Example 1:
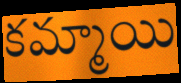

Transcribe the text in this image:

కమ్మాయి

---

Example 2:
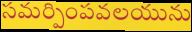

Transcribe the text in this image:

సమర్పింపవలయును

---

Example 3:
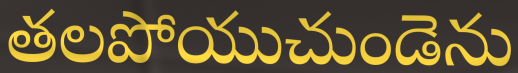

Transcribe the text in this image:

తలపోయుచుండెను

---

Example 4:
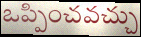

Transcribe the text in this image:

ఒప్పించవచ్చు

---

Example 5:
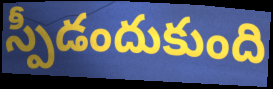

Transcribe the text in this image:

స్పీడందుకుంది